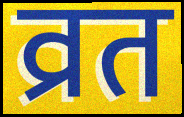
व्रत